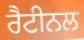
ਰੈਟੀਨਲ